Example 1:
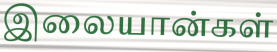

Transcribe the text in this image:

இலையான்கள்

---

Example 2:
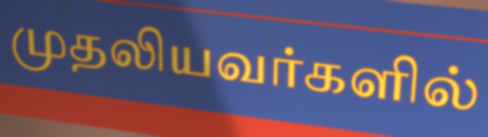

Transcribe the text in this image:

முதலியவர்களில்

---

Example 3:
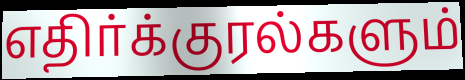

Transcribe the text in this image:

எதிர்க்குரல்களும்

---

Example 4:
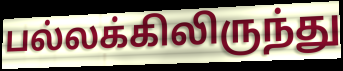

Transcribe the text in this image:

பல்லக்கிலிருந்து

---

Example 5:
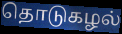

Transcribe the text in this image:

தொடுகழல்